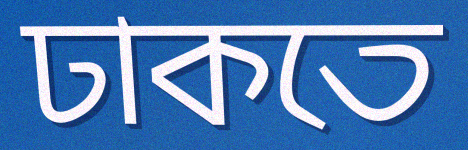
ঢাকতে